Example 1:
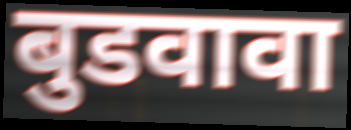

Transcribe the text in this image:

बुडवावा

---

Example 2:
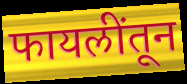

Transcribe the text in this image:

फायलींतून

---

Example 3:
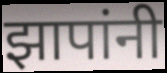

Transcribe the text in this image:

झापांनी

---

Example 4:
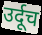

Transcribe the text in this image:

उर्दूच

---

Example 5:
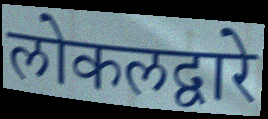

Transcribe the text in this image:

लोकलद्वारे